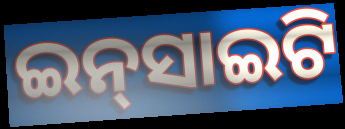
ଇନ୍‌ସାଇଟି